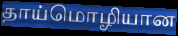
தாய்மொழியான